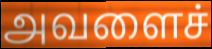
அவளைச்